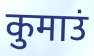
कुमाउं